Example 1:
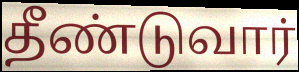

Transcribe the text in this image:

தீண்டுவார்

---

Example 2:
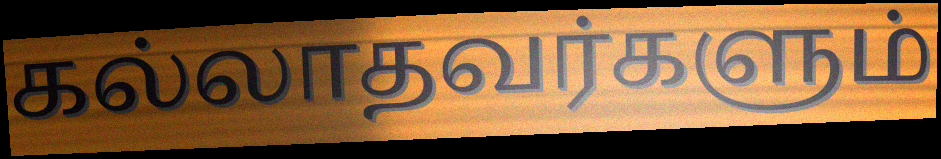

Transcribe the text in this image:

கல்லாதவர்களும்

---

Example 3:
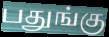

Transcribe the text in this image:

பதுங்கு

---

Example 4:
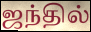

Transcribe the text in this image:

ஜந்தில்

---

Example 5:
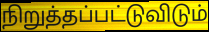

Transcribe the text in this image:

நிறுத்தப்பட்டுவிடும்